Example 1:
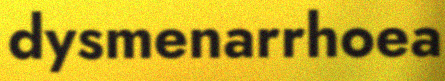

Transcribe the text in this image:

dysmenarrhoea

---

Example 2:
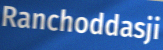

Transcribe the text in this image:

Ranchoddasji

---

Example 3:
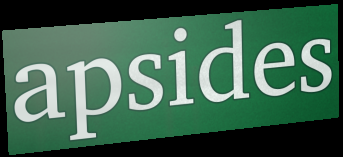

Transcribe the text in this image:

apsides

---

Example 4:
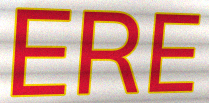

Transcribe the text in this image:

ERE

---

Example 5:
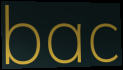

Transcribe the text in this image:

bac